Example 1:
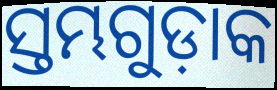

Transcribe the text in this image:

ସ୍ତମ୍ଭଗୁଡ଼ାକ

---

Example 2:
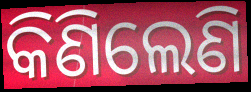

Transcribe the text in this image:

କିଣିଲେଣି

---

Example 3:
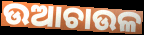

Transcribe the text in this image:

ଉଆଚାଉଳ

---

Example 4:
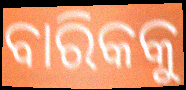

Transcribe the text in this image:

ବାରିକକୁ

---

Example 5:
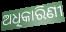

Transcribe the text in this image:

ଅଧିକାରିଣୀ